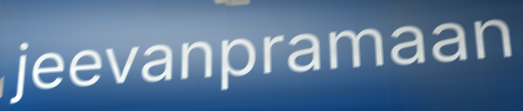
jeevanpramaan